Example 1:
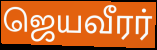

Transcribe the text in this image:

ஜெயவீரர்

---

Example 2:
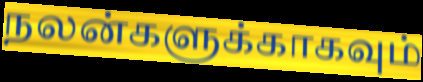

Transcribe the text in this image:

நலன்களுக்காகவும்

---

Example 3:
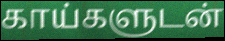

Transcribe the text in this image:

காய்களுடன்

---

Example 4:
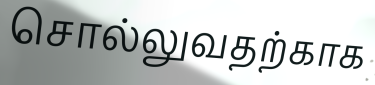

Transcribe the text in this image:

சொல்லுவதற்காக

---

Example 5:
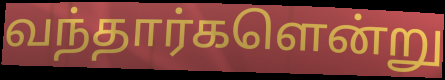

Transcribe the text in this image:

வந்தார்களென்று